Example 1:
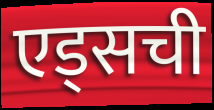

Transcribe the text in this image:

एड्सची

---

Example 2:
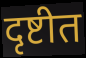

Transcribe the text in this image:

दृष्टीत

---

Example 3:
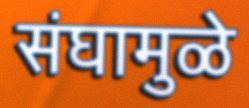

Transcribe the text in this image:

संघामुळे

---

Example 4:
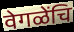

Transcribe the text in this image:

वेगळेंचि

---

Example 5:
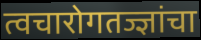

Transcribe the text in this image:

त्वचारोगतज्ज्ञांचा